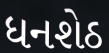
ધનશેઠ